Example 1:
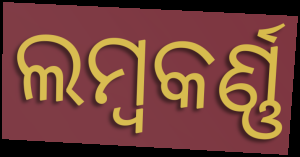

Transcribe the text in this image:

ଲମ୍ୱକର୍ଣ୍ଣ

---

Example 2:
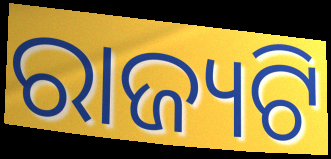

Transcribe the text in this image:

ରାଜ୍ୟଟି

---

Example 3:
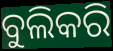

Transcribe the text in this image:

ବୁଲିକରି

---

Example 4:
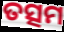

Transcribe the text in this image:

ତତ୍ସମ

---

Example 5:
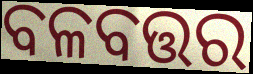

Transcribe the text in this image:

ବଳବତ୍ତର